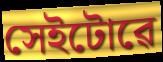
সেইটোৱে